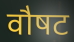
वौषट